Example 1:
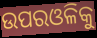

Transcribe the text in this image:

ଉପରଓଳିକୁ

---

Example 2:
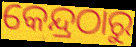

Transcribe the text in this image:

କେନ୍ଦ୍ରଠାରୁ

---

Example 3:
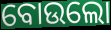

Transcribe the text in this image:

ବୋଉଲୋ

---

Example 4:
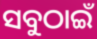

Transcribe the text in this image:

ସବୁଠାଇଁ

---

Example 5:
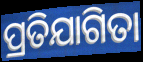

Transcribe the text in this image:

ପ୍ରତିଯାଗିତା